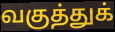
வகுத்துக்